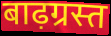
बाढ़ग्रस्त